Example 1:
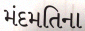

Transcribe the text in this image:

મંદમતિના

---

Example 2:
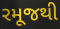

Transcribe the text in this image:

રમૂજથી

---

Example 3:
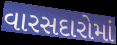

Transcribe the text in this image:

વારસદારોમાં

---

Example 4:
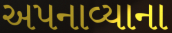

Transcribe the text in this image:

અપનાવ્યાના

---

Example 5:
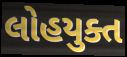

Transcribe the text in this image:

લોહયુક્ત